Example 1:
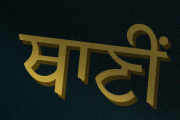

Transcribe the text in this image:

ਥਾਣੀਂ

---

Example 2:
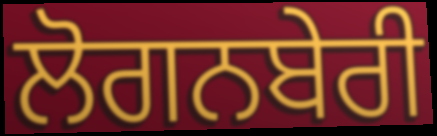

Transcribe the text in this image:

ਲੋਗਨਬੇਰੀ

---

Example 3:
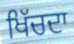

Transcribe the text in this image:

ਖਿੱਚਦਾ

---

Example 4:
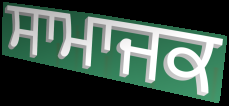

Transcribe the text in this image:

ਸਾਮਾਜਕ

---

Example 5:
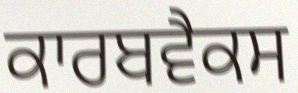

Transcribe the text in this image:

ਕਾਰਬਵੈਕਸ